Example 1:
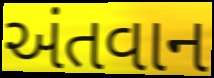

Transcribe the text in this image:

અંતવાન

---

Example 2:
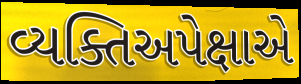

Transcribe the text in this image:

વ્યક્તિઅપેક્ષાએ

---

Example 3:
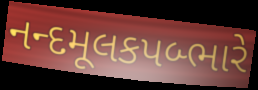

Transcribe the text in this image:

નન્દમૂલકપબ્ભારે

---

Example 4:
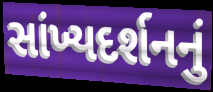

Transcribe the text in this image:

સાંખ્યદર્શનનું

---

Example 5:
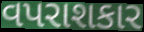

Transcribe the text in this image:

વપરાશકાર